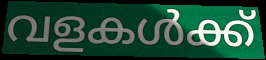
വളകൾക്ക്